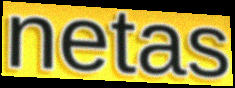
netas